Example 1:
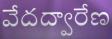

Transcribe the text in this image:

వేదద్వారేణ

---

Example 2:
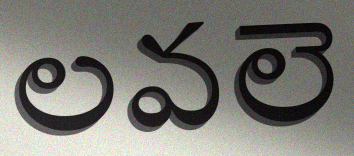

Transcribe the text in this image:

లవలె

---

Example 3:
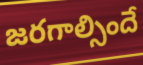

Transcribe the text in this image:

జరగాల్సిందే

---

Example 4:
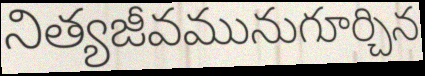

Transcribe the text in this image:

నిత్యజీవమునుగూర్చిన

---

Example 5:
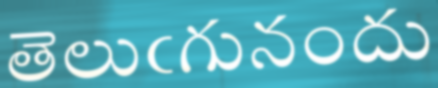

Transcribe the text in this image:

తెలుఁగునందు